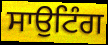
ਸਾਉਟਿੰਗ